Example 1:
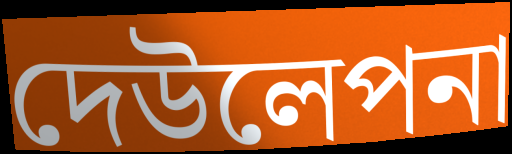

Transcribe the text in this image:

দেউলেপনা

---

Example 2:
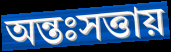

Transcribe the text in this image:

অন্তঃসত্তায়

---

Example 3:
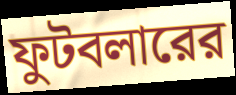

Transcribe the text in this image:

ফুটবলারের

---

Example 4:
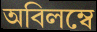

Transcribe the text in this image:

অবিলম্বে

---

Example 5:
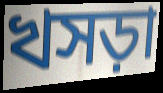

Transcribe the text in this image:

খসড়া